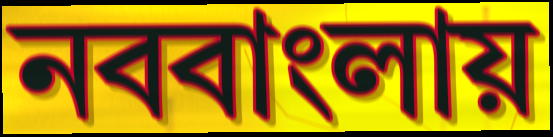
নববাংলায়